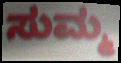
ಸುಮ್ಮ